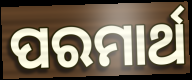
ପରମାର୍ଥ